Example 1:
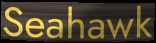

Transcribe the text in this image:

Seahawk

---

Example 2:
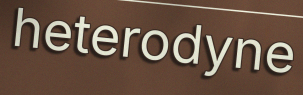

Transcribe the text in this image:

heterodyne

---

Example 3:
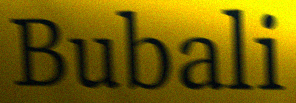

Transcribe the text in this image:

Bubali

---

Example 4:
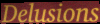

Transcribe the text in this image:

Delusions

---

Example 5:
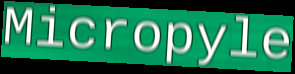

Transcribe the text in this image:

Micropyle